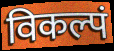
विकल्पं